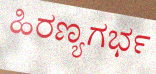
ಹಿರಣ್ಯಗರ್ಭ